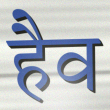
हैव